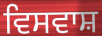
ਵਿਸਵਾਸ਼